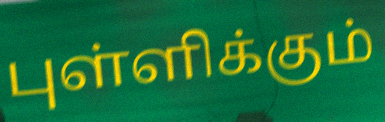
புள்ளிக்கும்